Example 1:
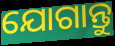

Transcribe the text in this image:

ଯୋଗାନ୍ତୁ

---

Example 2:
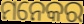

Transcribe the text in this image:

ମନେକର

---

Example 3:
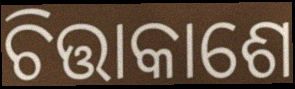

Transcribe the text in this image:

ଚିତ୍ତାକାଶେ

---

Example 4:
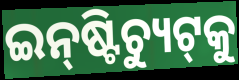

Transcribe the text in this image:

ଇନ୍‌ଷ୍ଟିଚ୍ୟୁଟ୍‌କୁ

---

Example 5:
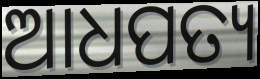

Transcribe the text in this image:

ଆଧପତ୍ୟ